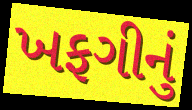
ખફગીનું